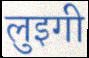
लुइगी